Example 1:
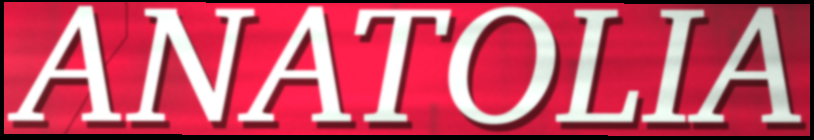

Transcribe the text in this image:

ANATOLIA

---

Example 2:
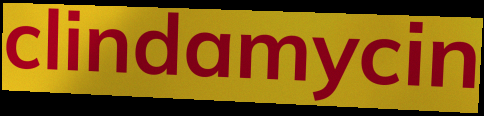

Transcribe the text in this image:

clindamycin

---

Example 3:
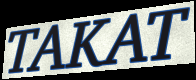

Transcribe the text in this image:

TAKAT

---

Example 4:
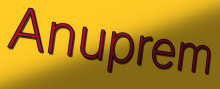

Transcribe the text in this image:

Anuprem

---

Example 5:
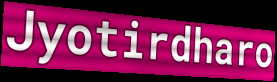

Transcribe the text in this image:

Jyotirdharo